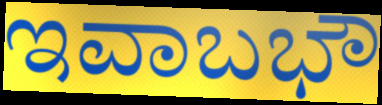
ಇವಾಬಭೌ